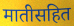
मातीसहित